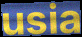
usia